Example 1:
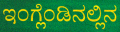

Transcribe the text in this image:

ಇಂಗ್ಲೆಂಡಿನಲ್ಲಿನ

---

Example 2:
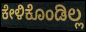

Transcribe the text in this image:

ಕೇಳಿಕೊಂಡಿಲ್ಲ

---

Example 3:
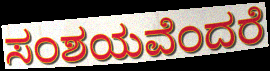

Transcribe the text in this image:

ಸಂಶಯವೆಂದರೆ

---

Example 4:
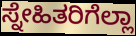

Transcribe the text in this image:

ಸ್ನೇಹಿತರಿಗೆಲ್ಲಾ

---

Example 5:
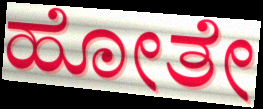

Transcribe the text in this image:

ಹೋತೇ